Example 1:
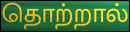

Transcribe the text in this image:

தொற்றால்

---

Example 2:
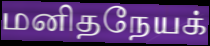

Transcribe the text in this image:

மனிதநேயக்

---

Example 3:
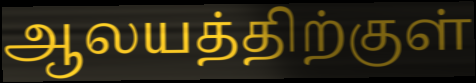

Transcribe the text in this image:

ஆலயத்திற்குள்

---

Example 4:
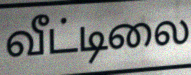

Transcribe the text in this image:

வீட்டிலை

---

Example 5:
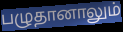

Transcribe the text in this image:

பழுதானாலும்